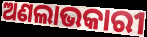
ଅଣଲାଭକାରୀ